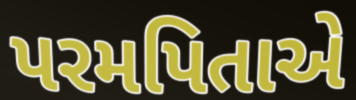
પરમપિતાએ